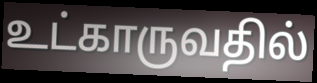
உட்காருவதில்